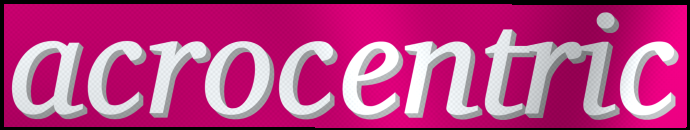
acrocentric